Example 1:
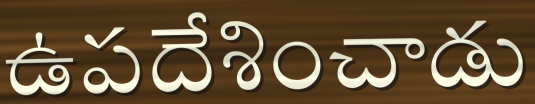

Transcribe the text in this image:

ఉపదేశించాడు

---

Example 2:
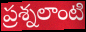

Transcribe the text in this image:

ప్రశ్నలాంటి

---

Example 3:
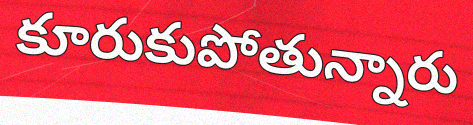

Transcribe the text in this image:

కూరుకుపోతున్నారు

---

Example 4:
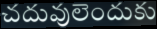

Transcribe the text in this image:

చదువులెందుకు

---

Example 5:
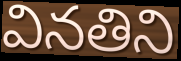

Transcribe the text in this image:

వినతిని